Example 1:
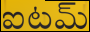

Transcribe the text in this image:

ఐటమ్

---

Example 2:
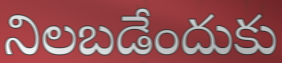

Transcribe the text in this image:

నిలబడేందుకు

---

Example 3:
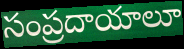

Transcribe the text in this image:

సంప్రదాయాలూ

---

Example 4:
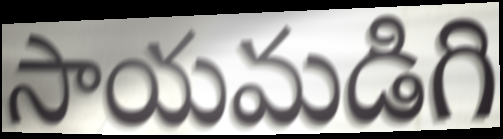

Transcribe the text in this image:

సాయమడిగి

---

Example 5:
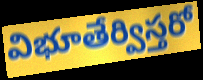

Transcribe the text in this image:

విభూతేర్విస్తరో